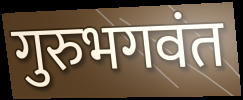
गुरुभगवंत